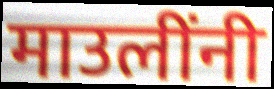
माउलींनी